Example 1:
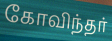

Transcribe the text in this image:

கோவிந்தர்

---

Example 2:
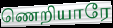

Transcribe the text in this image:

ணெறியாரே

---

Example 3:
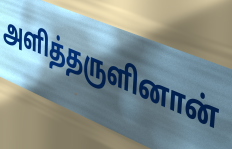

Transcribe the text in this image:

அளித்தருளினான்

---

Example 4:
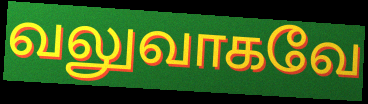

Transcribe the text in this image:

வலுவாகவே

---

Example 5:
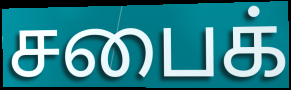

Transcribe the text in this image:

சபைக்